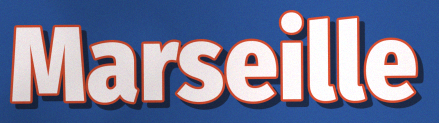
Marseille